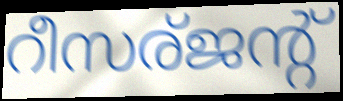
റീസര്ജന്റ്